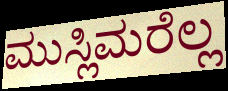
ಮುಸ್ಲಿಮರೆಲ್ಲ